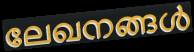
ലേഖനങ്ങൾ